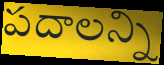
పదాలన్ని